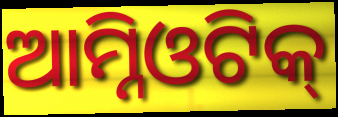
ଆମ୍ନିଓଟିକ୍